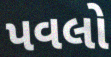
પવલો